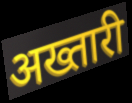
अख्तारी